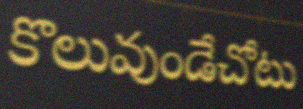
కొలువుండేచోటు